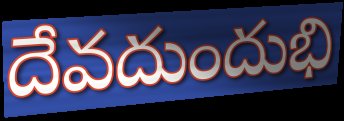
దేవదుందుభి